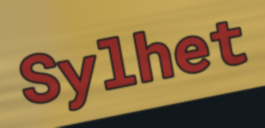
Sylhet